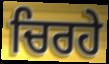
ਚਿਰਹੇ